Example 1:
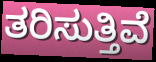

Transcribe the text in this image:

ತರಿಸುತ್ತಿವೆ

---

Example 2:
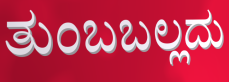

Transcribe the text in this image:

ತುಂಬಬಲ್ಲದು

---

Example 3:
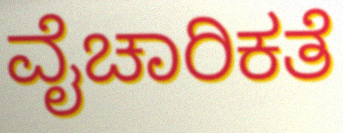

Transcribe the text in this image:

ವೈಚಾರಿಕತೆ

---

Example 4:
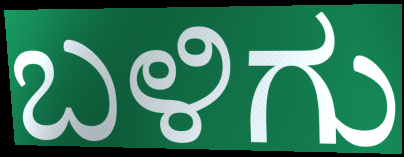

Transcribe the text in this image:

ಬಳಿಗು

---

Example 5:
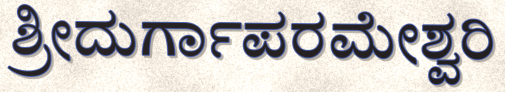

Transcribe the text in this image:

ಶ್ರೀದುರ್ಗಾಪರಮೇಶ್ವರಿ